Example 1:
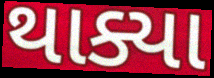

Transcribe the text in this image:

થાક્યા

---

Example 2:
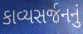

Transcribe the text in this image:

કાવ્યસર્જનનું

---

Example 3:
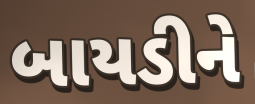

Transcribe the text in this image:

બાયડીને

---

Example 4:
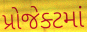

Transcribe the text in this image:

પ્રોજેક્ટમાં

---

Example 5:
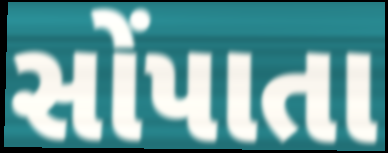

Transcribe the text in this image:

સોંપાતા